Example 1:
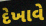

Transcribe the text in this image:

દેખાવે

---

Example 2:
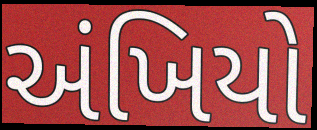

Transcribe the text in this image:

અંખિયો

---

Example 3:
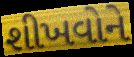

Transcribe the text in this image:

શીખવોને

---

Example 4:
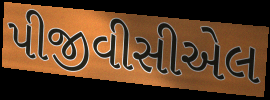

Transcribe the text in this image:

પીજીવીસીએલ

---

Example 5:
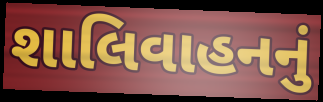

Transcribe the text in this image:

શાલિવાહનનું